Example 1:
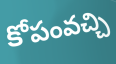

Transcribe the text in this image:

కోపంవచ్చి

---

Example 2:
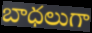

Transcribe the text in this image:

బాధలుగా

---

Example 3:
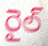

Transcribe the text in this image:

రైల్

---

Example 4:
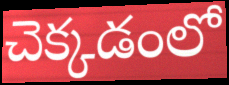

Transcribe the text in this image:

చెక్కడంలో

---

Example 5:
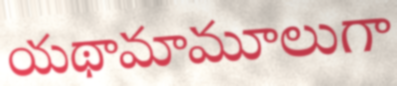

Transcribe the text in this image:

యథామామూలుగా